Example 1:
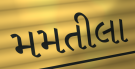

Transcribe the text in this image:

મમતીલા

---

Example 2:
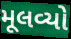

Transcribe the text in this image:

મૂલવ્યો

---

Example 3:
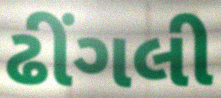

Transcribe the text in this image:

ઢીંગલી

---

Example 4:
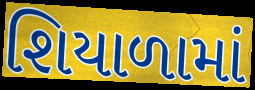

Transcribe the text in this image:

શિયાળામાં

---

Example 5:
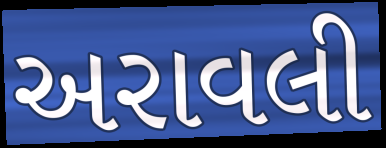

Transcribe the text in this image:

અરાવલી